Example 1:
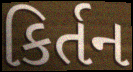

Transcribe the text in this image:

કિર્તન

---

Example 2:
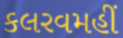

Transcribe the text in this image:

કલરવમહીં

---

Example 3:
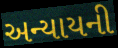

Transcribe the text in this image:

અન્યાયની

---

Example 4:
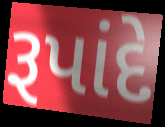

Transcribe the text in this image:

રૂપાંદે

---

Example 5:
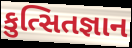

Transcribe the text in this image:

કુત્સિતજ્ઞાન